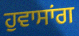
ਹੁਵਾਸਾਂਗ